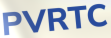
PVRTC